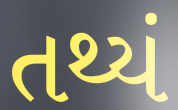
તથ્યં